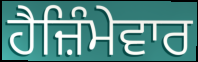
ਹੈਜ਼ਿੰਮੇਵਾਰ